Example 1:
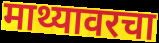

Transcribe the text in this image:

माथ्यावरचा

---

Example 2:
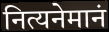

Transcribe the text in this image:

नित्यनेमानं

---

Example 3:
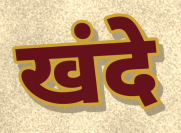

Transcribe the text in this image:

खंदे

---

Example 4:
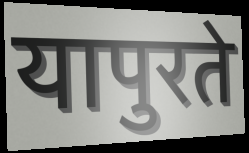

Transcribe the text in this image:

यापुरते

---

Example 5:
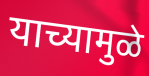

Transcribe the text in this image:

याच्यामुळे